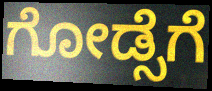
ಗೋಡ್ಸೆಗೆ